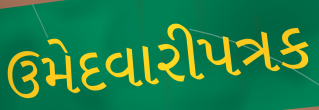
ઉમેદવારીપત્રક